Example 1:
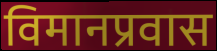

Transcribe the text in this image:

विमानप्रवास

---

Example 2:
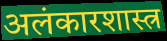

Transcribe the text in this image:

अलंकारशास्त्र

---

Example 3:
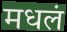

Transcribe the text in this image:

मधलं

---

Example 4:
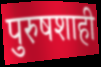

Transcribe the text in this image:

पुरुषशाही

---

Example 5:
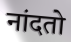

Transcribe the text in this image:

नांदतो